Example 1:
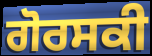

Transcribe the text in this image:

ਗੋਰਸਕੀ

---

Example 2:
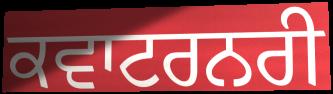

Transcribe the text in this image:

ਕਵਾਟਰਨਰੀ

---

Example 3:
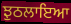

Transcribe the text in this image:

ਝੁਠਲਾਇਆ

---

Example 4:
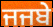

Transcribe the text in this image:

ਜਜਬੇ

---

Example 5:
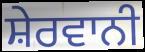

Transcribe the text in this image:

ਸ਼ੇਰਵਾਨੀ